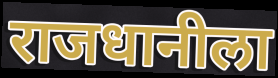
राजधानीला